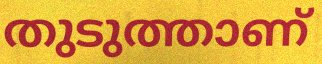
തുടുത്താണ്